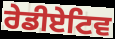
ਰੇਡੀਏਟਿਵ